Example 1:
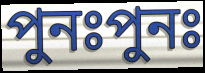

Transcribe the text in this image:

পুনঃপুনঃ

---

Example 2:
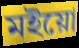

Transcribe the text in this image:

মইয়ো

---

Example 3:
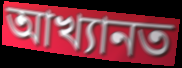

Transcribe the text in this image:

আখ্যানত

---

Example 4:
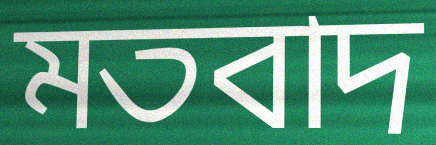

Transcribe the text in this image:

মতবাদ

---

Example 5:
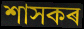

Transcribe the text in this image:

শাসকৰ